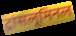
ट्रांसलूमिनल